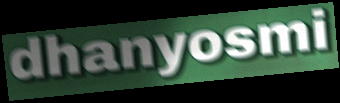
dhanyosmi